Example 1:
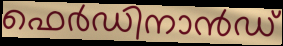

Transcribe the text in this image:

ഫെർഡിനാൻഡ്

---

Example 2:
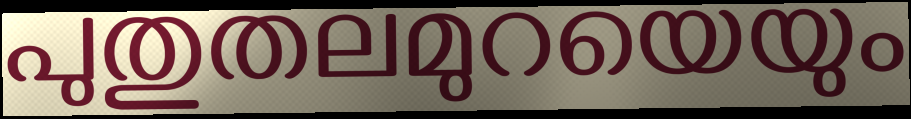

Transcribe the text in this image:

പുതുതലമുറയെയും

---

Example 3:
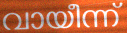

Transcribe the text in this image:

വായീന്ന്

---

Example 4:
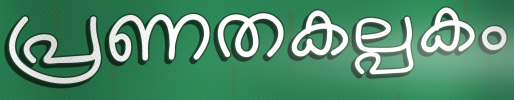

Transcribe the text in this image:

പ്രണതകല്പകം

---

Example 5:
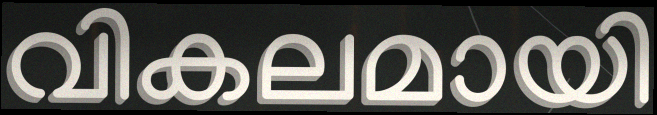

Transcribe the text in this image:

വികലമായി